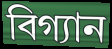
বিগ্যান